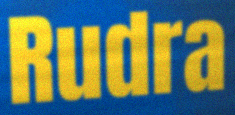
Rudra